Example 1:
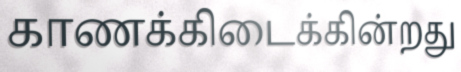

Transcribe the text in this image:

காணக்கிடைக்கின்றது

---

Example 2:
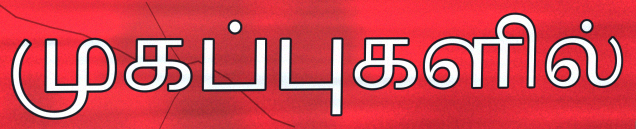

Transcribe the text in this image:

முகப்புகளில்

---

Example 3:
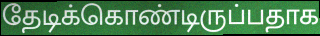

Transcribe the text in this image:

தேடிக்கொண்டிருப்பதாக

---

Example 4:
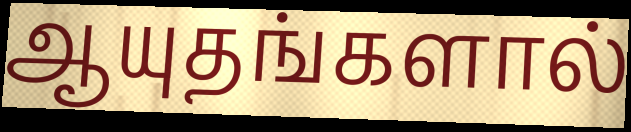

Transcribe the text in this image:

ஆயுதங்களால்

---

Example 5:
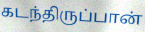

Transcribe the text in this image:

கடந்திருப்பான்